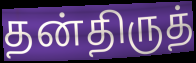
தன்திருத்